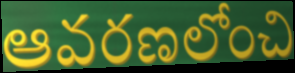
ఆవరణలోంచి